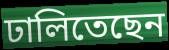
ঢালিতেছেন